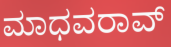
ಮಾಧವರಾವ್